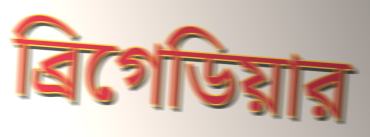
ব্রিগেডিয়ার